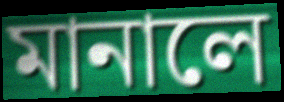
মানালে